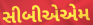
સીબીએએમ